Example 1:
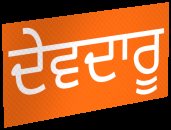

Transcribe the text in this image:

ਦੇਵਦਾਰੂ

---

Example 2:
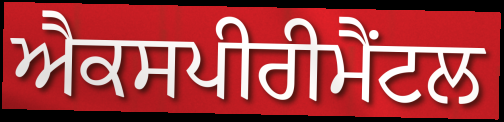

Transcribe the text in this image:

ਐਕਸਪੀਰੀਮੈਂਟਲ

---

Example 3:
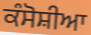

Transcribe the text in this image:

ਕੰਸੋਸ਼ੀਆ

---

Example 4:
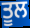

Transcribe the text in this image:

ਤੂਲ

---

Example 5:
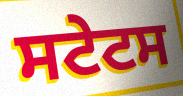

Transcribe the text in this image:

ਸਟੇਟਸ